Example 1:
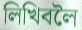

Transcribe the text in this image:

লিখিবলৈ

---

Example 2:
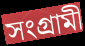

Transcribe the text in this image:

সংগ্ৰামী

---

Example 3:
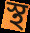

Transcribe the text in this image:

স্থ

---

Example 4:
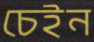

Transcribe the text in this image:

চেইন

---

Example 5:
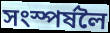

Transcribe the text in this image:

সংস্পৰ্ষলৈ